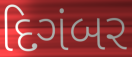
દિગંબર